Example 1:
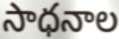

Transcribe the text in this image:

సాధనాల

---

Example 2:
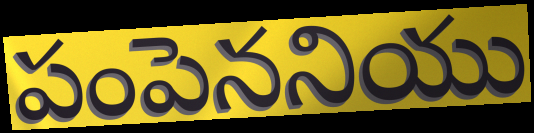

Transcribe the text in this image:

పంపెననియు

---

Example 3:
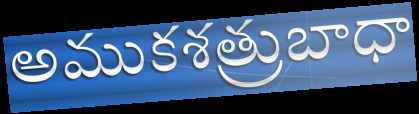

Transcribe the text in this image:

అముకశత్రుబాధా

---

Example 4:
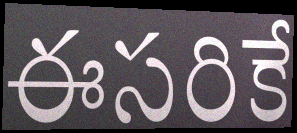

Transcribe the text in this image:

ఈసరికే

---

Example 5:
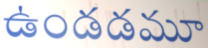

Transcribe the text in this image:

ఉండడమూ